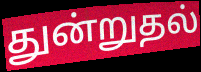
துன்றுதல்